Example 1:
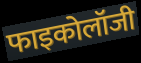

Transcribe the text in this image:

फाइकोलॉजी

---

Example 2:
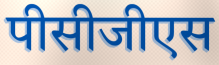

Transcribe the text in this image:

पीसीजीएस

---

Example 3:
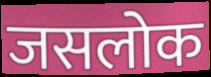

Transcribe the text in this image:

जसलोक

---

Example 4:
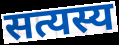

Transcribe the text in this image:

सत्यस्य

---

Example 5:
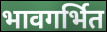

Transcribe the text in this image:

भावगर्भित